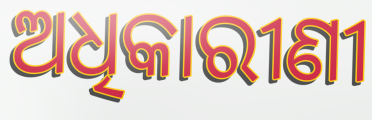
ଅଧିକାରୀଣୀ